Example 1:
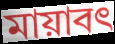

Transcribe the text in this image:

মায়াবৎ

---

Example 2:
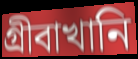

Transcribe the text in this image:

গ্রীবাখানি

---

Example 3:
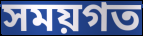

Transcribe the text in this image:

সময়গত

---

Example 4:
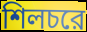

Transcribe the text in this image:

শিলচরে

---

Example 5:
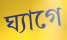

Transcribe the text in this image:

ঘ্যাগে